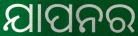
ଯାପନର